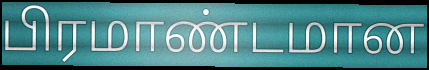
பிரமாண்டமான